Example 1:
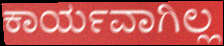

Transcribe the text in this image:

ಕಾರ್ಯವಾಗಿಲ್ಲ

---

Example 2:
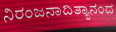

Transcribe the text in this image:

ನಿರಂಜನಾದಿತ್ಯಾನಂದ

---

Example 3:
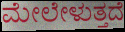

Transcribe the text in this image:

ಮೇಲೇಳುತ್ತದೆ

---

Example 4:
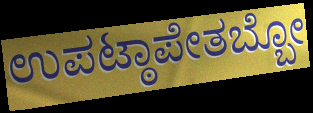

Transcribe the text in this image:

ಉಪಟ್ಠಾಪೇತಬ್ಬೋ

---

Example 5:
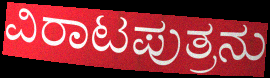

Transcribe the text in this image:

ವಿರಾಟಪುತ್ರನು